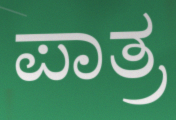
ಪಾತ್ರ